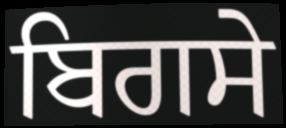
ਬਿਗਸੇ